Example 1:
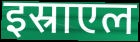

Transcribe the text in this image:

इस्राएल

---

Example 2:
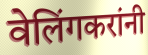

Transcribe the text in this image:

वेलिंगकरांनी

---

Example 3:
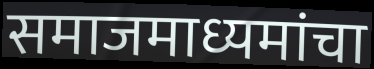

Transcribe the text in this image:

समाजमाध्यमांचा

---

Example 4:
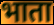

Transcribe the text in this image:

भाता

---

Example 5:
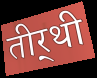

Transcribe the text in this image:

तीर्थी